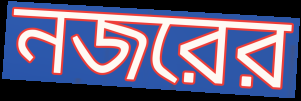
নজরের